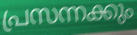
പ്രസന്നക്കും